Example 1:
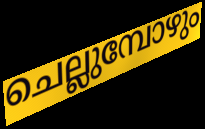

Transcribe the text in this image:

ചെല്ലുമ്പോഴും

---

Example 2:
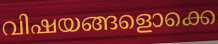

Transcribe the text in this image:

വിഷയങ്ങളൊക്കെ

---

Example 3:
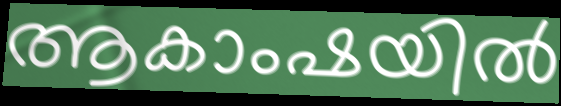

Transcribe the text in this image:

ആകാംഷയിൽ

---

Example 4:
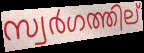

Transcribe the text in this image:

സ്വർഗത്തില്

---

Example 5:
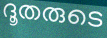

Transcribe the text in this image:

ദൂതരുടെ